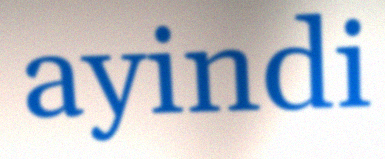
ayindi